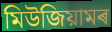
মিউজিয়ামৰ